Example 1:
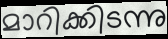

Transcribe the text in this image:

മാറിക്കിടന്നു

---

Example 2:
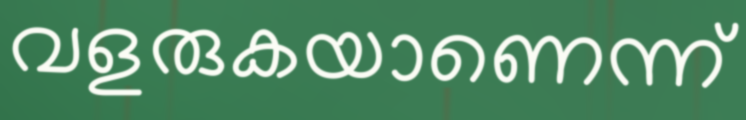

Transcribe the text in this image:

വളരുകയാണെന്ന്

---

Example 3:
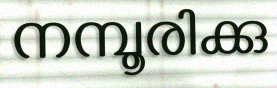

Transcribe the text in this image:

നമ്പൂരിക്കു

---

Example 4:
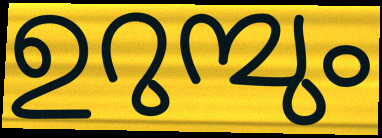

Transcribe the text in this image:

ഉറുമ്പും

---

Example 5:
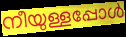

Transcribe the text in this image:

നീയുള്ളപ്പോൾ